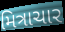
મિત્રાચાર